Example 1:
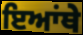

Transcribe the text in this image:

ਇਆਂਥੇ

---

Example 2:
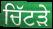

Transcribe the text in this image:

ਚਿੱਟੜੇ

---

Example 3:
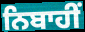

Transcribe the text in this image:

ਨਿਬਾਹੀਂ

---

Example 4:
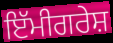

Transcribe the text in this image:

ਇੱਮੀਗਰੇਸ਼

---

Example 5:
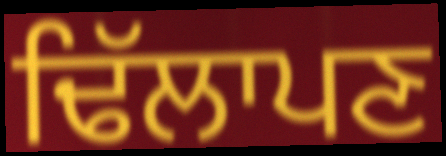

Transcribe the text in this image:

ਢਿੱਲਾਪਣ